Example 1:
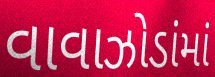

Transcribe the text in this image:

વાવાઝોડાંમાં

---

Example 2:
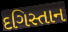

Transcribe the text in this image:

દગિસ્તાન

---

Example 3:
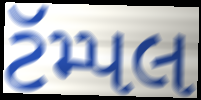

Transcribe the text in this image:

ટૅમ્પલ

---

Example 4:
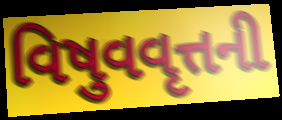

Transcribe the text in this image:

વિષુવવૃત્તની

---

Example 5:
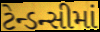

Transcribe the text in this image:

ટેન્ડન્સીમાં